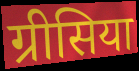
ग्रीसिया